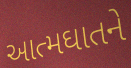
આત્મઘાતને